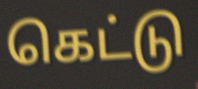
கெட்டு